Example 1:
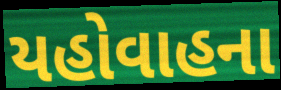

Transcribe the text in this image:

યહોવાહના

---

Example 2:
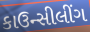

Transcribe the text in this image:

કાઉન્સીલીંગ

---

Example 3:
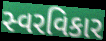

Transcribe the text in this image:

સ્વરવિકાર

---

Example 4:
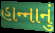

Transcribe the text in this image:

હાન્‍નાનું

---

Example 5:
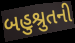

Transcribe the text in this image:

બહુશ્રુતની